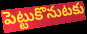
పెట్టుకొనుటకు